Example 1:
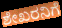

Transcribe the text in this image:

ಶೇಖರನಿಗೆ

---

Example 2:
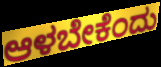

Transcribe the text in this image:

ಆಳಬೇಕೆಂದು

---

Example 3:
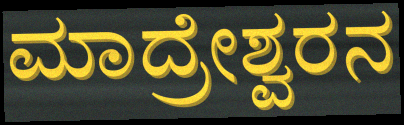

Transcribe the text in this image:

ಮಾದ್ರೇಶ್ವರನ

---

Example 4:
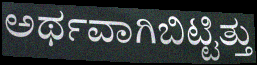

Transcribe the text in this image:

ಅರ್ಥವಾಗಿಬಿಟ್ಟಿತ್ತು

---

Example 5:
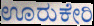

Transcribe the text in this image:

ಊರುಕೇರಿ